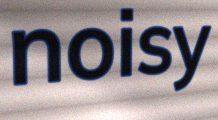
noisy